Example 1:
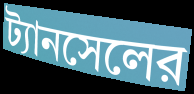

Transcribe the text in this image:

ট্যানসেলের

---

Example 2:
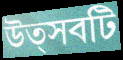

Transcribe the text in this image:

উত্সবটি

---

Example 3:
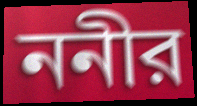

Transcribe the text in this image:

ননীর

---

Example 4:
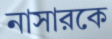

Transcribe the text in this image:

নাসারকে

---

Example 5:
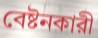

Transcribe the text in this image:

বেষ্টনকারী